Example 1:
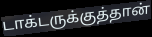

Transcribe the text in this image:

டாக்டருக்குத்தான்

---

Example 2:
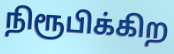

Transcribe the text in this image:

நிரூபிக்கிற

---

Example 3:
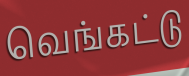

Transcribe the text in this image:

வெங்கட்டு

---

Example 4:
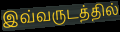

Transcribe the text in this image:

இவ்வருடத்தில்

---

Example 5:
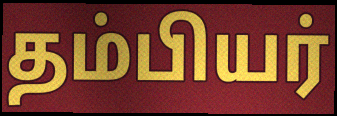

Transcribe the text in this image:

தம்பியர்